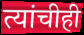
त्यांचीही